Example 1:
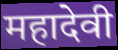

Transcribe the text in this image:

महादेवी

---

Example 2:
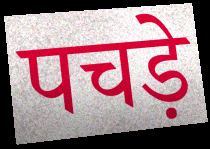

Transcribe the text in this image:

पचड़े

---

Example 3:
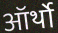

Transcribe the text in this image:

ऑर्थो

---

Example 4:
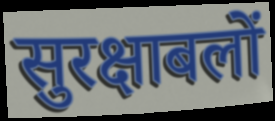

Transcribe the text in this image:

सुरक्षाबलों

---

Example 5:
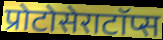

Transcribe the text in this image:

प्रोटोसेराटॉप्स